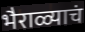
भैराळ्याचं